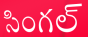
సింగల్